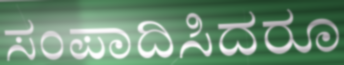
ಸಂಪಾದಿಸಿದರೂ